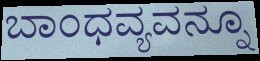
ಬಾಂಧವ್ಯವನ್ನೂ